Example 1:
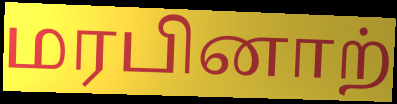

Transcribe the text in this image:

மரபினாற்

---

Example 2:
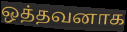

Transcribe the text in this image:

ஒத்தவனாக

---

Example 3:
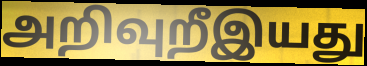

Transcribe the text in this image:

அறிவுறீஇயது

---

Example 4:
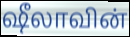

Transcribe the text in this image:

ஷீலாவின்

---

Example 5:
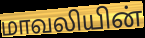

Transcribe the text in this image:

மாவலியின்